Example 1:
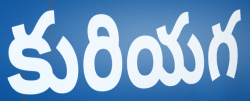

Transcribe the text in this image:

కురియగ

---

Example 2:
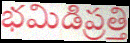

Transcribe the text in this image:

భమిడిప్రత్తి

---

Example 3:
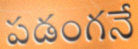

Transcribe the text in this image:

పడంగనే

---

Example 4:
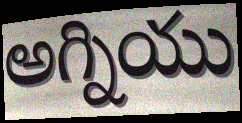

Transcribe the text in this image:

అగ్నియు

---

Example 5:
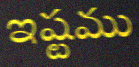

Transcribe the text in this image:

ఇష్టము